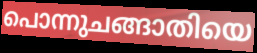
പൊന്നുചങ്ങാതിയെ